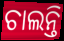
ଚାଲନ୍ତି